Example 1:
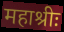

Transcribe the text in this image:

महाश्रीः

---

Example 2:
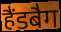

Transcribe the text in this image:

हैंडबैग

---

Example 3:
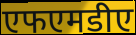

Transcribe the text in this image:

एफएमडीए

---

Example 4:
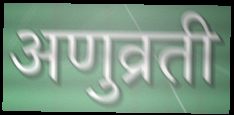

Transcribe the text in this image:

अणुव्रती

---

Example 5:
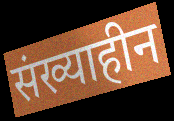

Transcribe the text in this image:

संख्याहीन